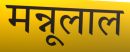
मन्नूलाल